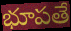
భూపతే